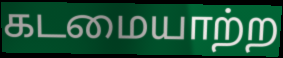
கடமையாற்ற